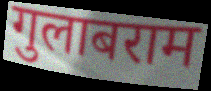
गुलाबराम